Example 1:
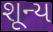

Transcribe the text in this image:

શૂન્ય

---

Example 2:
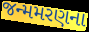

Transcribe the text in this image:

જન્મમરણના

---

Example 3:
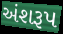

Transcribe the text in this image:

અંશરૂપ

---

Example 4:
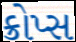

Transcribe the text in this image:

ક્રોપ્સ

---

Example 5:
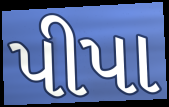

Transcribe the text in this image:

પીપા